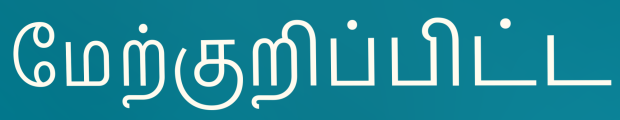
மேற்குறிப்பிட்ட